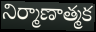
నిర్మాణాత్మక